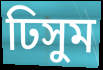
ঢিসুম